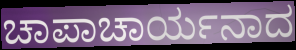
ಚಾಪಾಚಾರ್ಯನಾದ